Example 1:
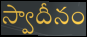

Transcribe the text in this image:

స్వాదీనం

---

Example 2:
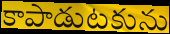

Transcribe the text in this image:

కాపాడుటకును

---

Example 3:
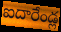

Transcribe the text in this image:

ఐదారేండ్ల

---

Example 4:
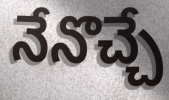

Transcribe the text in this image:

నేనొచ్చే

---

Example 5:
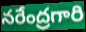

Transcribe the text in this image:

నరేంద్రగారి